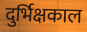
दुर्भिक्षकाल